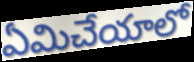
ఏమిచేయాలో